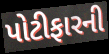
પોટીફારની